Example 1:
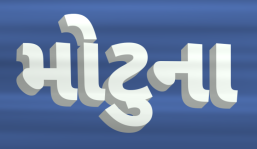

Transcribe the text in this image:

મોટુના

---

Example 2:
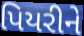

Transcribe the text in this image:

પિયરીને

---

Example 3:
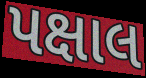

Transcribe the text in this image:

પક્ષાલ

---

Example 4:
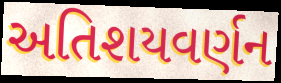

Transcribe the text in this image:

અતિશયવર્ણન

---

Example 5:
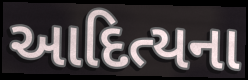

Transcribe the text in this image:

આદિત્યના